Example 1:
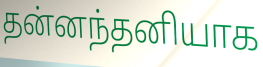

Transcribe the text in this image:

தன்னந்தனியாக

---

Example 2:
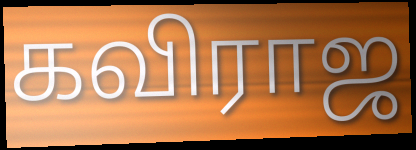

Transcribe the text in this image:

கவிராஜ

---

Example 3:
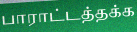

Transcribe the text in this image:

பாராட்டத்தக்க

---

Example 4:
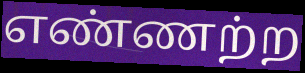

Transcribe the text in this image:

எண்ணற்ற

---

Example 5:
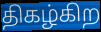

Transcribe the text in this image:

திகழ்கிற